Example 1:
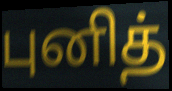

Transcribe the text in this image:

புனித்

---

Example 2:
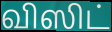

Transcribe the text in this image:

விஸிட்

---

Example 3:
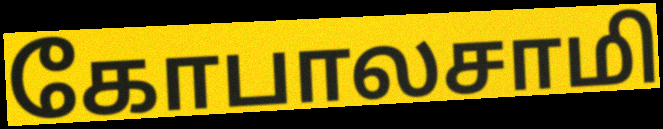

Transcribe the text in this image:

கோபாலசாமி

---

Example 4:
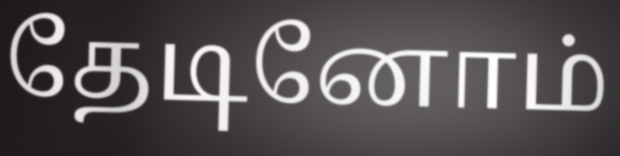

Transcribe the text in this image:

தேடினோம்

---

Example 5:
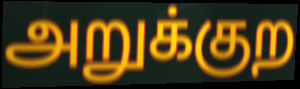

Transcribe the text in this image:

அறுக்குற